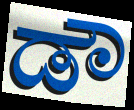
ಡೌ